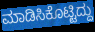
ಮಾಡಿಸಿಕೊಟ್ಟಿದ್ದು